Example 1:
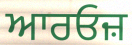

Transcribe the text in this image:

ਆਰਓਜ਼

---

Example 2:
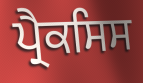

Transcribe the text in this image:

ਪ੍ਰੈਕਸਿਸ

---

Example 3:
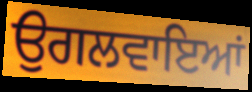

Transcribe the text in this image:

ਉਗਲਵਾਇਆਂ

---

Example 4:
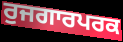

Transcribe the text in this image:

ਰੁਜਗਾਰਪਰਕ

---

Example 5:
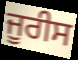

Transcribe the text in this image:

ਜੂਰੀਸ